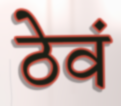
ठेवं